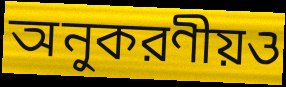
অনুকরণীয়ও